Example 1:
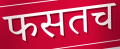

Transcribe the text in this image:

फसतच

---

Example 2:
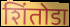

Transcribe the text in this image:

शिंतोडा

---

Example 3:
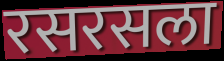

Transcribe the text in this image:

रसरसला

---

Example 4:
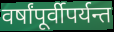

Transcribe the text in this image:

वर्षांपूर्वीपर्यन्त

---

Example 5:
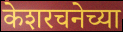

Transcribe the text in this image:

केशरचनेच्या